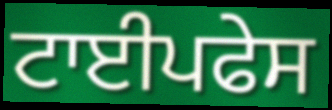
ਟਾਈਪਫੇਸ